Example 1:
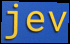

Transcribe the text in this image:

jev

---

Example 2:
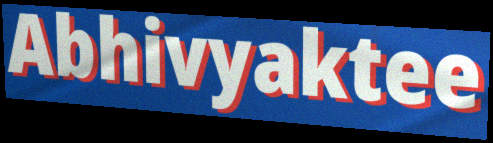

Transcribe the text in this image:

Abhivyaktee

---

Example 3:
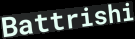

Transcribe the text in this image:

Battrishi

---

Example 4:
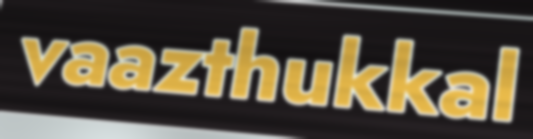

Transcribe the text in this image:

vaazthukkal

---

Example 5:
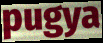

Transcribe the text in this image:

pugya